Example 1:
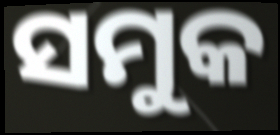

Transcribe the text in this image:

ସମୁକ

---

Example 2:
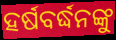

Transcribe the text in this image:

ହର୍ଷବର୍ଦ୍ଧନଙ୍କୁ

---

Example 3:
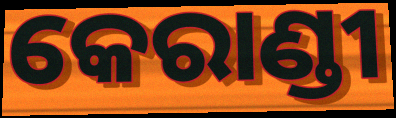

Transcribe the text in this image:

କେରାଣ୍ଡୀ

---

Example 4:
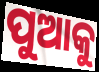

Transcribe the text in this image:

ପୁଆକୁ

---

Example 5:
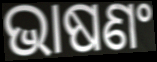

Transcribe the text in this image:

ଭାଷଣଂ